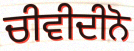
ਚੀਵੀਦੀਨੋ